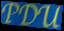
PDU